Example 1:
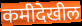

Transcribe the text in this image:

कमीदेखील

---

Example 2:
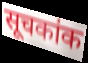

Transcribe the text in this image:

सूचकांक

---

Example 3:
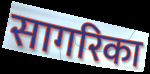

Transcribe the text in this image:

सागरिका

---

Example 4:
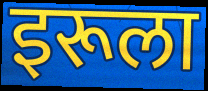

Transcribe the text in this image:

इरूला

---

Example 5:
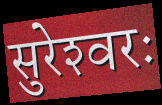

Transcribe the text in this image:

सुरेश्वरः